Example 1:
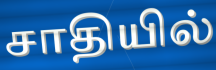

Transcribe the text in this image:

சாதியில்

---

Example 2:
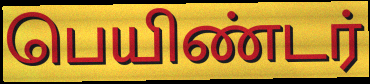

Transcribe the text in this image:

பெயிண்டர்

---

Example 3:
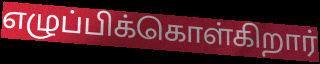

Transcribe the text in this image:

எழுப்பிக்கொள்கிறார்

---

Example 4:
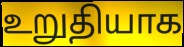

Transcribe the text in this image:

உறுதியாக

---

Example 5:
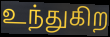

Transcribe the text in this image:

உந்துகிற